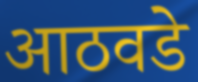
आठवडे